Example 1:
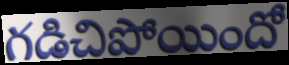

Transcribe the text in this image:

గడిచిపోయిందో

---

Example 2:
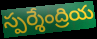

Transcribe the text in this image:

స్పర్శేంద్రియ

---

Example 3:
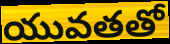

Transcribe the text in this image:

యువతతో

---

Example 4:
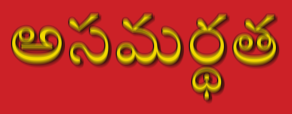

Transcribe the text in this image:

అసమర్థత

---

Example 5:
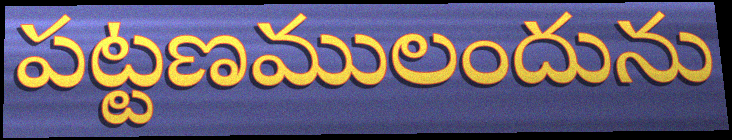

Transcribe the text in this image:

పట్టణములందును